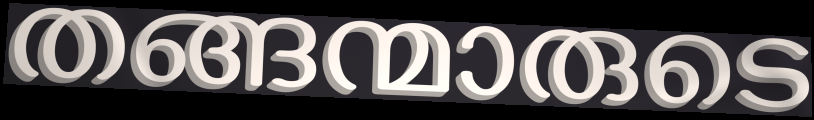
തങ്ങന്മാരുടെ